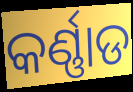
କର୍ଣ୍ଣାଡ